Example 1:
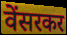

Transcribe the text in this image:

वेंसरकर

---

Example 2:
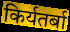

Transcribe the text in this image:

किर्यतर्बा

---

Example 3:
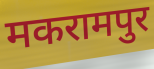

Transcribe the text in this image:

मकरामपुर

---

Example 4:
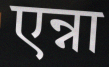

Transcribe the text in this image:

एन्ना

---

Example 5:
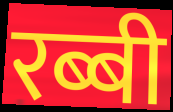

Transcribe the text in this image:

रब्बी